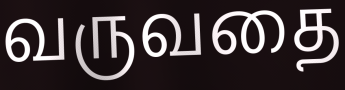
வருவதை